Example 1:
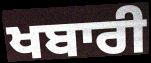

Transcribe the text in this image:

ਖਬਾਰੀ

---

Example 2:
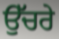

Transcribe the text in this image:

ਉੱਚਰੇ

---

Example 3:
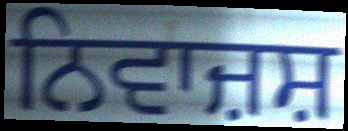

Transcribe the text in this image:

ਨਿਵਾਜ਼ਸ਼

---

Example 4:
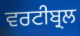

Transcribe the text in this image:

ਵਰਟੀਬ੍ਰਲ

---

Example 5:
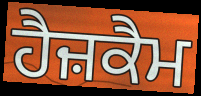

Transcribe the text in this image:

ਹੈਜ਼ਕੈਮ